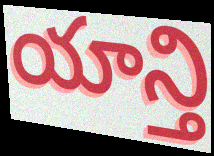
యాన్తి